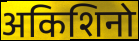
अकिशिनो